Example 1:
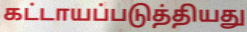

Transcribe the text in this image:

கட்டாயப்படுத்தியது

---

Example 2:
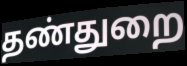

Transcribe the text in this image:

தண்துறை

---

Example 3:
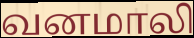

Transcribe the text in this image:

வனமாலி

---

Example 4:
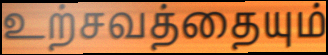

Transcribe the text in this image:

உற்சவத்தையும்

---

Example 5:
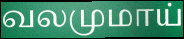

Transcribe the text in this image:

வலமுமாய்